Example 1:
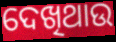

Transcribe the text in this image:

ଦେଖିଥାଉ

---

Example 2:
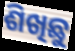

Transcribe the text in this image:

ଶିଖିଛୁ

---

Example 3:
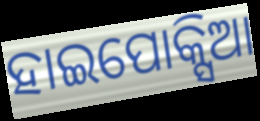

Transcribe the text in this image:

ହାଇପୋକ୍ସିଆ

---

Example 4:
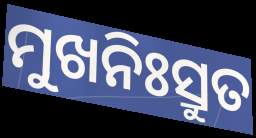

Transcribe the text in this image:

ମୁଖନିଃସ୍ରୁତ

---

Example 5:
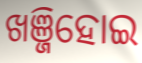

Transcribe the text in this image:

ଖଞ୍ଜିହୋଇ